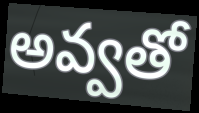
అవ్వతో